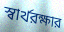
স্বার্থরক্ষার